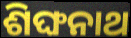
ଶିଙ୍ଘନାଥ